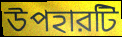
উপহারটি